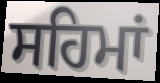
ਸਹਿਮਾਂ